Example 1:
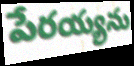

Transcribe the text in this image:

పేరయ్యను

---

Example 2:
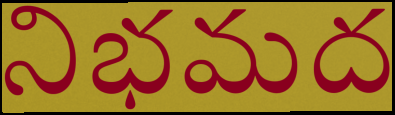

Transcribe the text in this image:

నిభమద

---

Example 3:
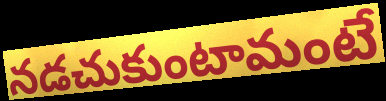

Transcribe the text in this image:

నడచుకుంటామంటే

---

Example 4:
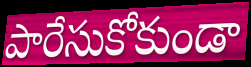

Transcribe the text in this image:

పారేసుకోకుండా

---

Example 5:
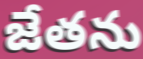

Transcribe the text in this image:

జేతను